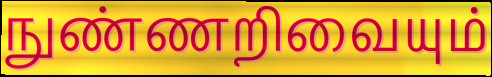
நுண்ணறிவையும்